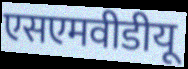
एसएमवीडीयू